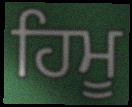
ਹਿਮੂ